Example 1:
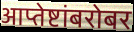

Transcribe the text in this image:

आप्तेष्टांबरोबर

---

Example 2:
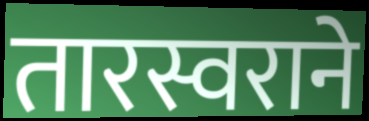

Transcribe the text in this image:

तारस्वराने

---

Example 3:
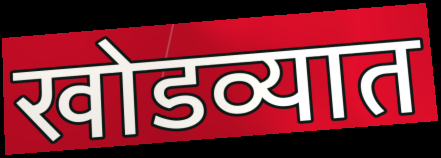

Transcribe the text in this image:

खोडव्यात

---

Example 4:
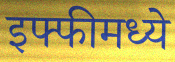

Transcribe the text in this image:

इफ्फीमध्ये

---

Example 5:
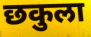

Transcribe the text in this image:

छकुला